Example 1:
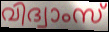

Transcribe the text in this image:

വിദ്വാംസ്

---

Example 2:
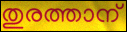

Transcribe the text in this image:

തുരത്താന്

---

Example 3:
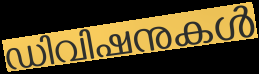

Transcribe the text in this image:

ഡിവിഷനുകൾ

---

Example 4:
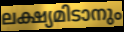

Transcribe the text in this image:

ലക്ഷ്യമിടാനും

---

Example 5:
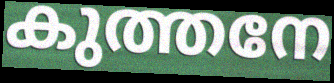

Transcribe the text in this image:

കുത്തനേ